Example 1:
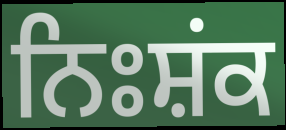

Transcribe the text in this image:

ਨਿਃਸ਼ਂਕ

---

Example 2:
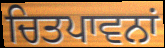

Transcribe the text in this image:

ਚਿਤਪਾਵਨਾਂ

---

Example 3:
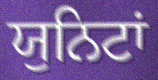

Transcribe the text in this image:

ਯੁਨਿਟਾਂ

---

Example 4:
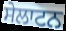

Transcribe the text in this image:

ਸੇਲਾਟਨ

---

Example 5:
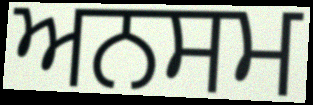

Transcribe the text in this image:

ਅਨਸਮ